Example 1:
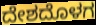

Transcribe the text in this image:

ದೇಶದೊಳಗ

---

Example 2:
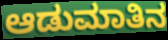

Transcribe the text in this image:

ಆಡುಮಾತಿನ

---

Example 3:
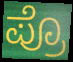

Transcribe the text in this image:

ಪ್ರೊ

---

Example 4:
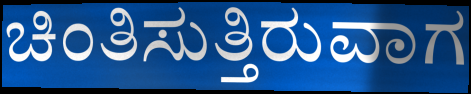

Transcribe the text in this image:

ಚಿಂತಿಸುತ್ತಿರುವಾಗ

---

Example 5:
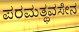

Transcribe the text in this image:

ಪರಮತ್ಥವಸೇನ